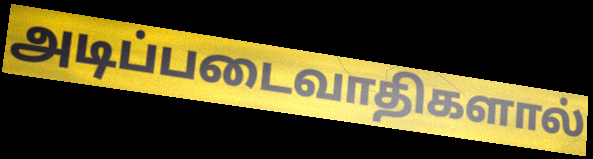
அடிப்படைவாதிகளால்